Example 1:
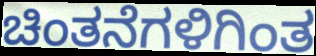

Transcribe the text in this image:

ಚಿಂತನೆಗಳಿಗಿಂತ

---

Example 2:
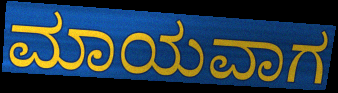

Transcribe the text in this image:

ಮಾಯವಾಗ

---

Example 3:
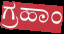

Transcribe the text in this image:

ಗ್ರಹಾಂ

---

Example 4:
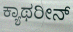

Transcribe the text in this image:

ಕ್ಯಾಥರೀನ್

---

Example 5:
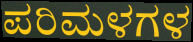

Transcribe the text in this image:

ಪರಿಮಳಗಳ